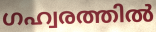
ഗഹ്വരത്തിൽ